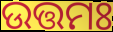
ଉତ୍ତମଃ